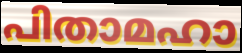
പിതാമഹാ